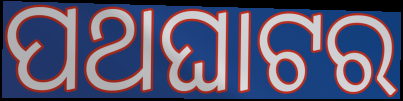
ପଥଘାଟର